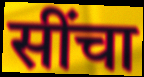
सींचा